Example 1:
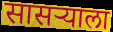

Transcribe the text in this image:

सासऱ्याला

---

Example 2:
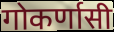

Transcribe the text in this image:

गोकर्णासी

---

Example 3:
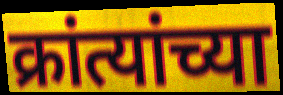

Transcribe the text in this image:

क्रांत्यांच्या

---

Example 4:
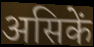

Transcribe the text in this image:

असिकें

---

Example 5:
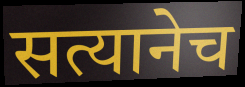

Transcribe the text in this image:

सत्यानेच